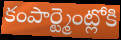
కంపార్ట్మెంట్లోకి